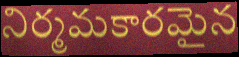
నిర్మమకారమైన